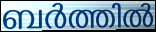
ബർത്തിൽ